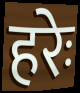
हरेः